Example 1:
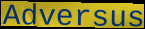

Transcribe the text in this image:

Adversus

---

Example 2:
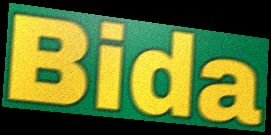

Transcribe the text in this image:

Bida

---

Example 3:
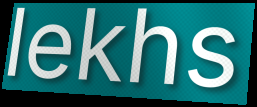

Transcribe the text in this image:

lekhs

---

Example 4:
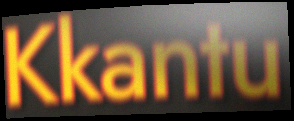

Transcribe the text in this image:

Kkantu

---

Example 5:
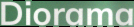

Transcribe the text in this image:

Diorama